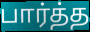
பார்த்த